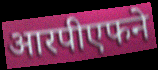
आरपीएफने